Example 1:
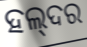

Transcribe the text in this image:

ହଲ୍‌ଦର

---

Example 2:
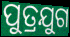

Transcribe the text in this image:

ପୁତ୍ରଯୁଗ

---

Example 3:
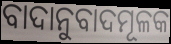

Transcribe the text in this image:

ବାଦାନୁବାଦମୂଳକ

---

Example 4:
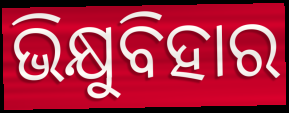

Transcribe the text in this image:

ଭିକ୍ଷୁବିହାର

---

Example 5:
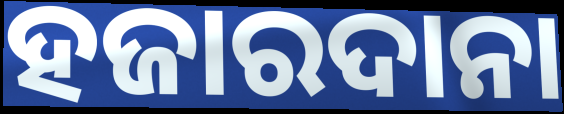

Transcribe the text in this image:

ହଜାରଦାନା